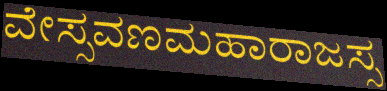
ವೇಸ್ಸವಣಮಹಾರಾಜಸ್ಸ